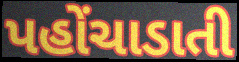
પહોંચાડાતી